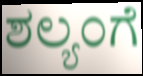
ಶಲ್ಯಂಗೆ